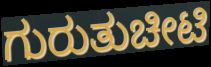
ಗುರುತುಚೀಟಿ